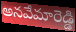
అనవేమారెడ్డి